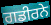
ਗਡੀਰਨੇ